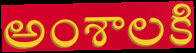
అంశాలకి